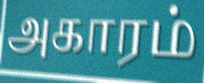
அகாரம்